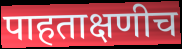
पाहताक्षणीच